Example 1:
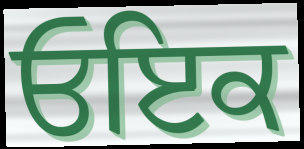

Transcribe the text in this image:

ਓਇਕ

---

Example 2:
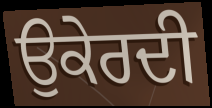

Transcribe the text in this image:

ਉਕੇਰਦੀ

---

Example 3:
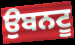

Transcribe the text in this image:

ਉਬਨਟੂ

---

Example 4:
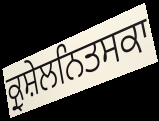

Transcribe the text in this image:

ਕ੍ਰੁਸ਼ੇਲਨਿਤਸਕਾ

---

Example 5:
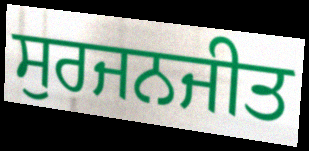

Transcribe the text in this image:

ਸੁਰਜਨਜੀਤ